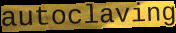
autoclaving